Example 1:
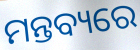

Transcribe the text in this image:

ମନ୍ତବ୍ୟରେ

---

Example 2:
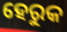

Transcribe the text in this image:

ହେରୁକ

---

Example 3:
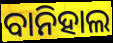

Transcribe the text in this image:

ବାନିହାଲ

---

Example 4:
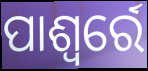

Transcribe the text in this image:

ପାଶ୍ୱର୍ରେ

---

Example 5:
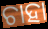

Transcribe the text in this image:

ଚାହା